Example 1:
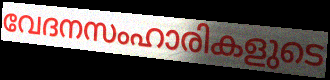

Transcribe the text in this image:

വേദനസംഹാരികളുടെ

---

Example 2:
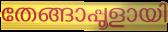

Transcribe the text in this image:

തേങ്ങാപ്പൂളായി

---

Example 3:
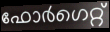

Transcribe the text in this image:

ഫോർഗെറ്റ്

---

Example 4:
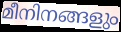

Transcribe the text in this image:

മീനിനങ്ങളും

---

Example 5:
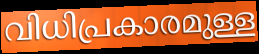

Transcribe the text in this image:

വിധിപ്രകാരമുള്ള